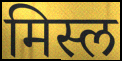
मिस्ल